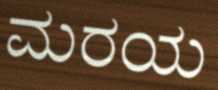
ಮರಯ